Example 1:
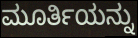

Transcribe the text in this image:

ಮೂರ್ತಿಯನ್ನು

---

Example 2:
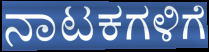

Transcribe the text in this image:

ನಾಟಕಗಳಿಗೆ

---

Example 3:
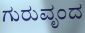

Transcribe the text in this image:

ಗುರುವೃಂದ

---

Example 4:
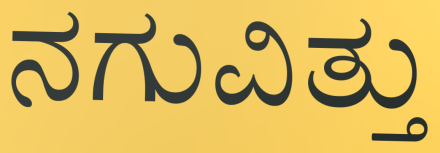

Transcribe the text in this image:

ನಗುವಿತ್ತು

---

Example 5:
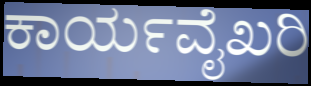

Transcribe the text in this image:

ಕಾರ್ಯವೈಖರಿ